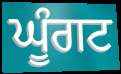
ਘੂੰਗਟ